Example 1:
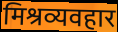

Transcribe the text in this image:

मिश्रव्यवहार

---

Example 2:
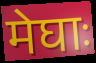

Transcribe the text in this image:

मेघाः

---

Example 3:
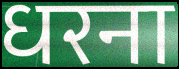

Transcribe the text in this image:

धरना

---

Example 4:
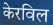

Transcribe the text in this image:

केरविल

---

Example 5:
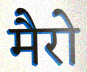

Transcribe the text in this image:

मैरो